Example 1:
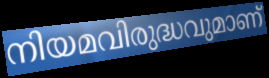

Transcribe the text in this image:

നിയമവിരുദ്ധവുമാണ്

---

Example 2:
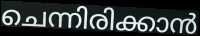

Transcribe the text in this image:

ചെന്നിരിക്കാൻ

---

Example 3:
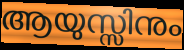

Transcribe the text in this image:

ആയുസ്സിനും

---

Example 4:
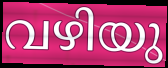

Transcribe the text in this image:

വഴിയു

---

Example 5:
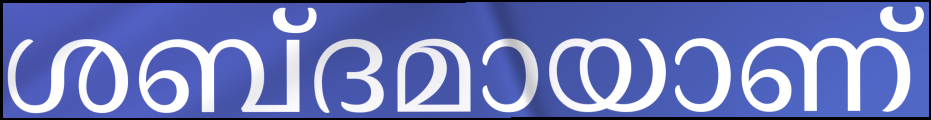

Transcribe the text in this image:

ശബ്ദമായാണ്